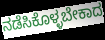
ನಡೆಸಿಕೊಳ್ಳಬೇಕಾದ